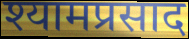
श्यामप्रसाद